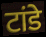
टांडे